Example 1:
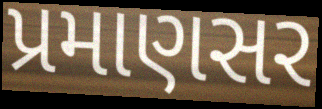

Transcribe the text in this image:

પ્રમાણસર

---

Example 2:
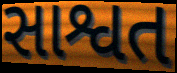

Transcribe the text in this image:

સાશ્વત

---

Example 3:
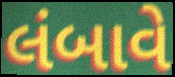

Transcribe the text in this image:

લંબાવે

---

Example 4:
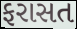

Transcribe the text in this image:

ફરાસત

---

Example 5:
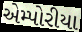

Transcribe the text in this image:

એમ્પોરીયા